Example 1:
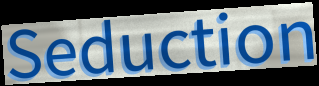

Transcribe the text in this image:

Seduction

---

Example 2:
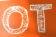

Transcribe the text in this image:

OT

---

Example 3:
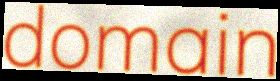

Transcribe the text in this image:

domain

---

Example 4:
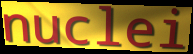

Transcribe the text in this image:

nuclei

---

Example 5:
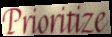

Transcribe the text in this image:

Prioritize